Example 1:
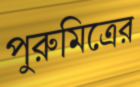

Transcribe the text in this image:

পুরুমিত্রের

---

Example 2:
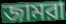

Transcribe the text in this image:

জামরা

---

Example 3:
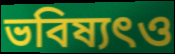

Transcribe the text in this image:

ভবিষ্যৎও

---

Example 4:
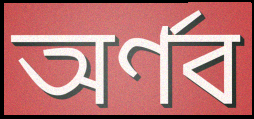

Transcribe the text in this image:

অর্ণব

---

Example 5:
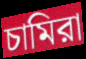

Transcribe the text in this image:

চামিরা